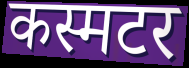
कस्मटर